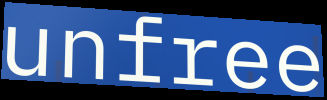
unfree